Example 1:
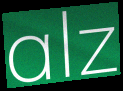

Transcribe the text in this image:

alz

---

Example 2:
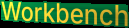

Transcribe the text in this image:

Workbench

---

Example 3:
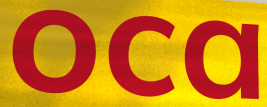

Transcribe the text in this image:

oca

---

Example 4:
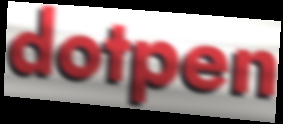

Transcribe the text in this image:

dotpen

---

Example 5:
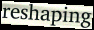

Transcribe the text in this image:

reshaping